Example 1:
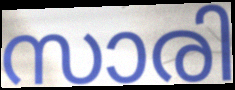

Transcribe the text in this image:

സാരി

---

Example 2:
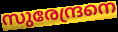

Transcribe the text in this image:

സുരേന്ദ്രനെ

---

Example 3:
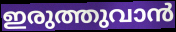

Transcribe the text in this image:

ഇരുത്തുവാൻ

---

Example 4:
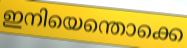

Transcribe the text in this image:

ഇനിയെന്തൊക്കെ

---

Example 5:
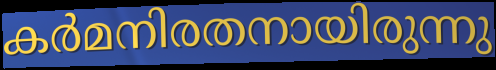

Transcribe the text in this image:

കർമനിരതനായിരുന്നു